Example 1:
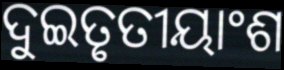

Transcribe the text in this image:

ଦୁଇତୃତୀୟାଂଶ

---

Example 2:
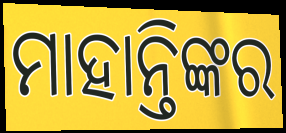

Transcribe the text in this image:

ମାହାନ୍ତିଙ୍କର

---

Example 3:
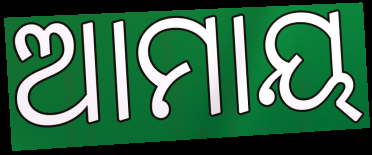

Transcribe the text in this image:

ଆମାୟ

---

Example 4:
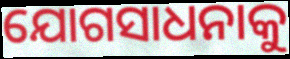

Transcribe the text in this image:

ଯୋଗସାଧନାକୁ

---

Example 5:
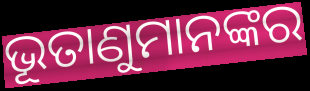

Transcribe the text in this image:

ଭୂତାଣୁମାନଙ୍କର